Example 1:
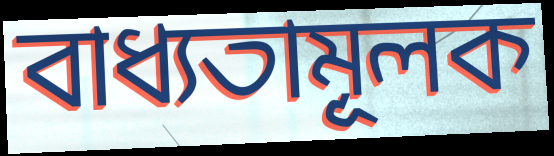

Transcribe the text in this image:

বাধ্যতামূলক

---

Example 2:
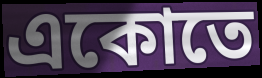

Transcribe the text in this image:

একোতে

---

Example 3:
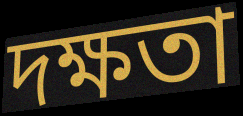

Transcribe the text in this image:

দক্ষতা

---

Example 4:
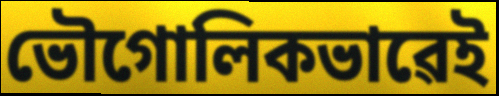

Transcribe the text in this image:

ভৌগোলিকভাৱেই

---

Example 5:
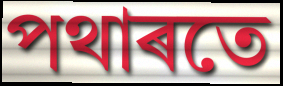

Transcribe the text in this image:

পথাৰতে